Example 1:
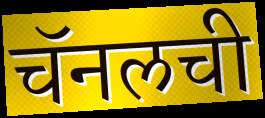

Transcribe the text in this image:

चॅनलची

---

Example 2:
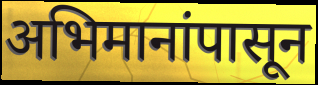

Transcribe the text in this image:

अभिमानांपासून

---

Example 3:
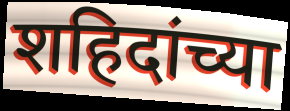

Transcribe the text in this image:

शहिदांच्या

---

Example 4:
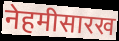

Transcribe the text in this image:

नेहमीसारख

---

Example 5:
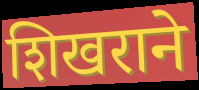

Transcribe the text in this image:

शिखराने